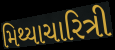
મિથ્યાચારિત્રી